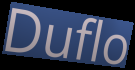
Duflo